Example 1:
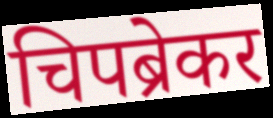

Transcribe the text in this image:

चिपब्रेकर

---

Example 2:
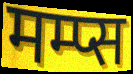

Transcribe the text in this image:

मम्प्स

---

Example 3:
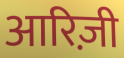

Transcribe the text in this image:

आरिज़ी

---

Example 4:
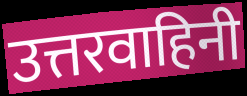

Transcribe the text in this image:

उत्तरवाहिनी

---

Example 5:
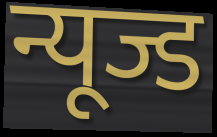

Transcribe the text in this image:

न्यूज्ड